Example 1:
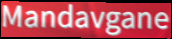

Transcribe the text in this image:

Mandavgane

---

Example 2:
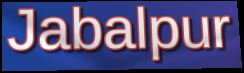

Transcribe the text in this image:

Jabalpur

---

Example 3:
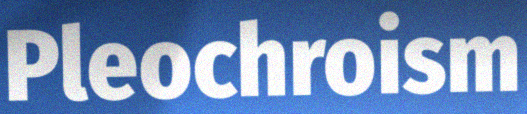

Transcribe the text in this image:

Pleochroism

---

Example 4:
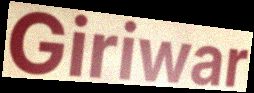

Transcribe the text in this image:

Giriwar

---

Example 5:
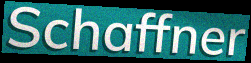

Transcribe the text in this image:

Schaffner